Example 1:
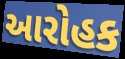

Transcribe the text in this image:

આરોહક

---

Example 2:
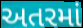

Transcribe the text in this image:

અતરમાં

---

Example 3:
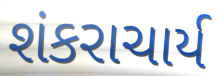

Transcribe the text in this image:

શંકરાચાર્ય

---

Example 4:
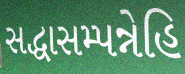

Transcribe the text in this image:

સદ્ધાસમ્પન્નેહિ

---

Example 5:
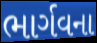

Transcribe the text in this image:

ભાર્ગવના